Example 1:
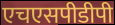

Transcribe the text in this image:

एचएसपीडीपी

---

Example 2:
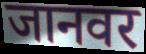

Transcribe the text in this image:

जानवर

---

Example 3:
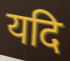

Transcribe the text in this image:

यदि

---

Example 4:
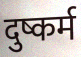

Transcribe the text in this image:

दुष्कर्म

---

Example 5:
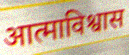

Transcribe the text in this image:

आत्माविश्वास